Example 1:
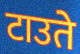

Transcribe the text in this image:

टाउते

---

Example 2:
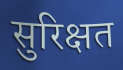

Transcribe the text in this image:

सुरिक्षत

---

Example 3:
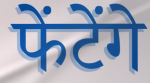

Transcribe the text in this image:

फेंटेंगे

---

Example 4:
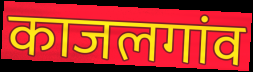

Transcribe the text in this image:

काजलगांव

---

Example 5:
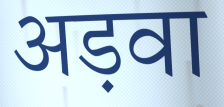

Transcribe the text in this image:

अड़वा